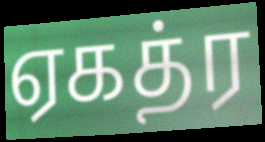
ஏகத்ர